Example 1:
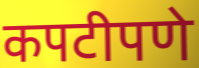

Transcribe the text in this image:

कपटीपणे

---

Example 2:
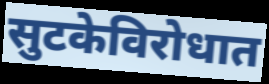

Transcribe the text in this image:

सुटकेविरोधात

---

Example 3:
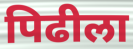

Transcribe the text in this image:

पिढीला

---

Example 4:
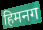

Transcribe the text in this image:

हिमनग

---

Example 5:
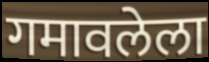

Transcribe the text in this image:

गमावलेला